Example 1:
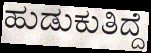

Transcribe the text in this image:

ಹುಡುಕುತಿದ್ದೆ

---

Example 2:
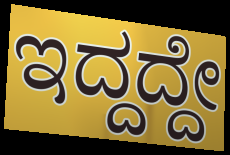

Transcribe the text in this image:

ಇದ್ದದ್ದೇ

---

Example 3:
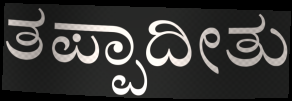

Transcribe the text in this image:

ತಪ್ಪಾದೀತು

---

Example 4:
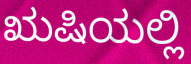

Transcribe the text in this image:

ಋಷಿಯಲ್ಲಿ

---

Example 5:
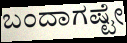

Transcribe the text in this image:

ಬಂದಾಗಷ್ಟೇ